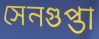
সেনগুপ্তা